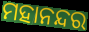
ମହାନନ୍ଦର